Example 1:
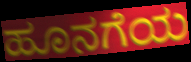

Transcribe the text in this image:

ಹೂನಗೆಯ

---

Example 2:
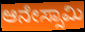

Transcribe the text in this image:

ಆನೇಸ್ಸಾಮಿ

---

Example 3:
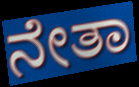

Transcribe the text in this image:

ನೇತಾ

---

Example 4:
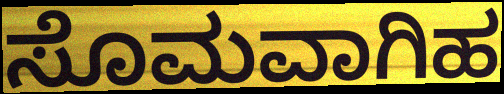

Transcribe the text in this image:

ಸೊಮವಾಗಿಹ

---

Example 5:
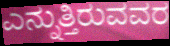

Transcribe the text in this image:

ಎನ್ನುತ್ತಿರುವವರ